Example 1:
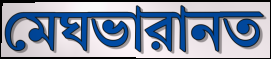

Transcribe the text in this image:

মেঘভারানত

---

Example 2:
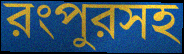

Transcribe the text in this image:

রংপুরসহ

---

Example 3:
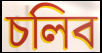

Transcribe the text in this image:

চলিব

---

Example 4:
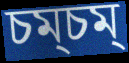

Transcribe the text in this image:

চম্চম্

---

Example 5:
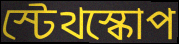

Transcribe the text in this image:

স্টেথস্কোপ